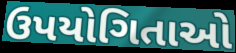
ઉપયોગિતાઓ